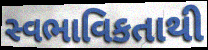
સ્વભાવિકતાથી